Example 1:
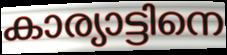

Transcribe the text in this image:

കാര്യാട്ടിനെ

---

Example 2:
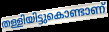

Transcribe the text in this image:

തള്ളിയിട്ടുകൊണ്ടാണ്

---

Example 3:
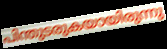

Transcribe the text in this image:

പിന്തുടരുകയായിരുന്നു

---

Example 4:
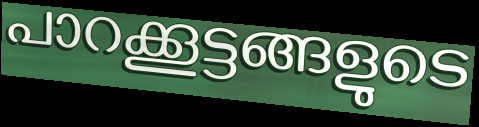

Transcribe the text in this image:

പാറക്കൂട്ടങ്ങളുടെ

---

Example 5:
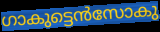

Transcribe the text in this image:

ഗാകുട്ടെൻസോകു